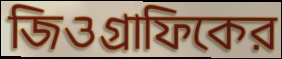
জিওগ্রাফিকের